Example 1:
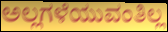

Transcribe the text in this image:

ಅಲ್ಲಗಳೆಯುವಂತಿಲ್ಲ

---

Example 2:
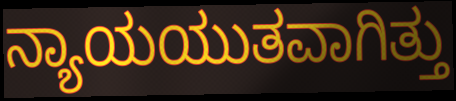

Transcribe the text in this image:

ನ್ಯಾಯಯುತವಾಗಿತ್ತು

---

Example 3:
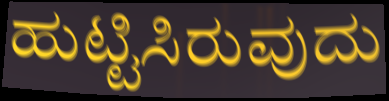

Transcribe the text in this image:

ಹುಟ್ಟಿಸಿರುವುದು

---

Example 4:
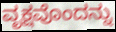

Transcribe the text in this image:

ವೃಕ್ಷವೊಂದನ್ನು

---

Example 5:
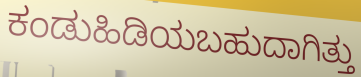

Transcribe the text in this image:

ಕಂಡುಹಿಡಿಯಬಹುದಾಗಿತ್ತು